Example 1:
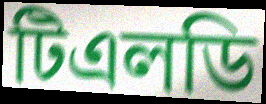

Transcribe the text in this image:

টিএলডি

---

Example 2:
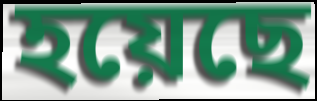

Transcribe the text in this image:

হয়েছে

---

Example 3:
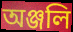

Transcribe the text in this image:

অঞ্জলি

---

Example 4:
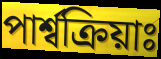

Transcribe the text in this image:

পাৰ্শ্বক্ৰিয়াঃ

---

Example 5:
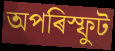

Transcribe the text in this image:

অপৰিস্ফুট